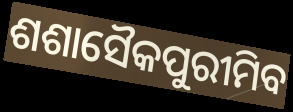
ଶଶାସୈକପୁରୀମିବ